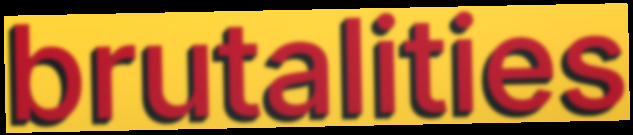
brutalities